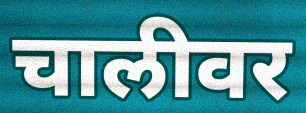
चालीवर